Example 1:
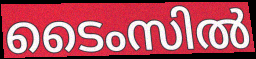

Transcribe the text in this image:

ടൈംസിൽ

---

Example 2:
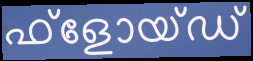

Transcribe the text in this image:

ഫ്ളോയ്ഡ്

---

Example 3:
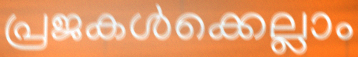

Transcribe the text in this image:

പ്രജകൾക്കെല്ലാം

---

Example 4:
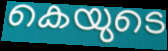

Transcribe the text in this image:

കെയുടെ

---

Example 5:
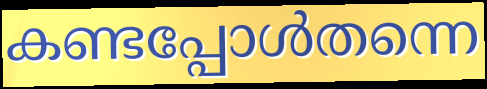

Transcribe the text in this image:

കണ്ടപ്പോൾതന്നെ